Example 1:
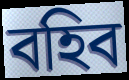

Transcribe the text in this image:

বহিব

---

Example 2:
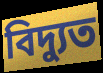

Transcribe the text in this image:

বিদ্যুত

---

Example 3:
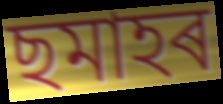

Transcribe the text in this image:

ছমাহৰ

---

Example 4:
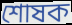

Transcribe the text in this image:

শোষক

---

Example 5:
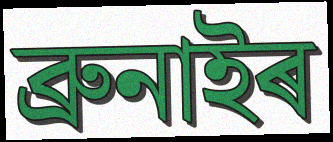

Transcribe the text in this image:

ব্ৰুনাইৰ